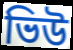
ভিউ